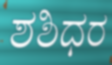
ಶಶಿಧರ